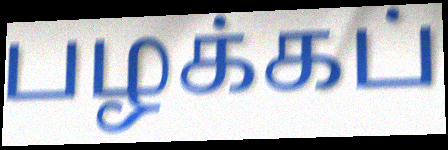
பழக்கப்